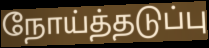
நோய்த்தடுப்பு